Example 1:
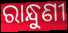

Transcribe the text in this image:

ରାନ୍ଧୁଣୀ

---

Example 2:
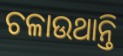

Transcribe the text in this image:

ଚଳାଉଥାନ୍ତି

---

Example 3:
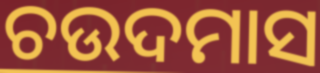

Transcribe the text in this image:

ଚଉଦମାସ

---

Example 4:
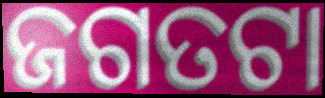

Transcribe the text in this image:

ଜଗତଟା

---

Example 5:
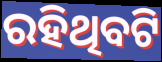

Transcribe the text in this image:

ରହିଥିବଟି